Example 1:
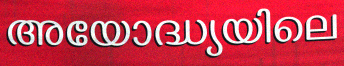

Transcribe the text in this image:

അയോദ്ധ്യയിലെ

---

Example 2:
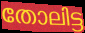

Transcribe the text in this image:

തോലിട്ട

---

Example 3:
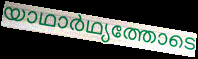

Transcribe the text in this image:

യാഥാർഥ്യത്തോടെ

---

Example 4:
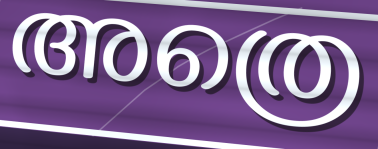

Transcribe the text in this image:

അത്രെ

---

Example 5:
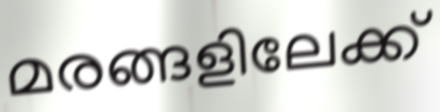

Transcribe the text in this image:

മരങ്ങളിലേക്ക്